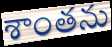
శాంతను